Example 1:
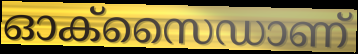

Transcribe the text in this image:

ഓക്സൈഡാണ്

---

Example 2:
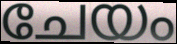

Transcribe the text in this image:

ചേയം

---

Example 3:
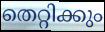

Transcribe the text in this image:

തെറ്റിക്കും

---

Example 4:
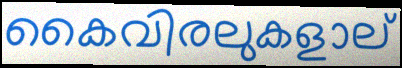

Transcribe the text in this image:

കൈവിരലുകളാല്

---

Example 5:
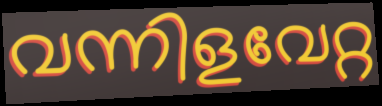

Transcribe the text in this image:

വന്നിളവേറ്റ